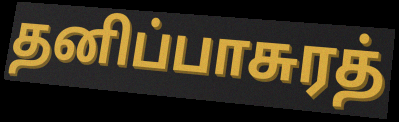
தனிப்பாசுரத்